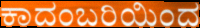
ಕಾದಂಬರಿಯಿಂದ